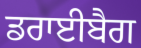
ਡਰਾਈਬੈਗ